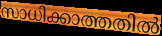
സാധിക്കാത്തതിൽ